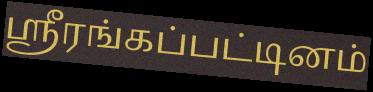
ஸ்ரீரங்கப்பட்டினம்